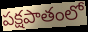
పక్షపాతంలో